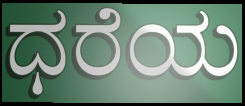
ಧರೆಯ